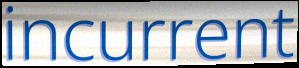
incurrent